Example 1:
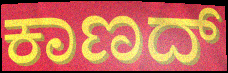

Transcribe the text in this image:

ಕಾಣದ್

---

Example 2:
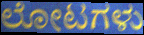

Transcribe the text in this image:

ಲೋಟಗಳು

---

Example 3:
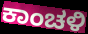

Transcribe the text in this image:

ಕಾಂಚಳಿ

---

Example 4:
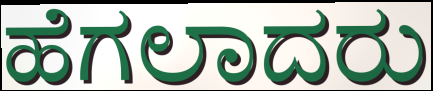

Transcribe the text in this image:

ಹೆಗಲಾದರು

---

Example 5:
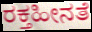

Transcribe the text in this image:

ರಕ್ತಹೀನತೆ